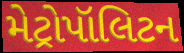
મેટ્રોપૉલિટન